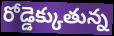
రోడ్డెక్కుతున్న